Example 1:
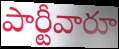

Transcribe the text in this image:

పార్టీవారూ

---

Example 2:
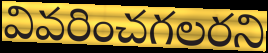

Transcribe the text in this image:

వివరించగలరని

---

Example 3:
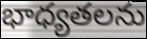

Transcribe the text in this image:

భాధ్యతలను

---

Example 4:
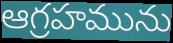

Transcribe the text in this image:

ఆగ్రహమును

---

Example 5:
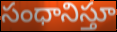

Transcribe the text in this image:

సంధానిస్తూ